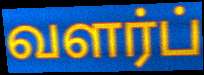
வளர்ப்